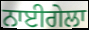
ਨਾਈਗੇਲਾ